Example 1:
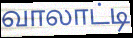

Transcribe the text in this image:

வாலாட்டி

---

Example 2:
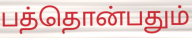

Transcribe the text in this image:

பத்தொன்பதும்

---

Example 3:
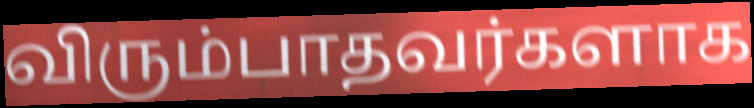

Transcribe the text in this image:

விரும்பாதவர்களாக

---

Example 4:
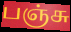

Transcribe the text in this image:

பஞ்சு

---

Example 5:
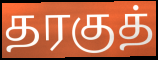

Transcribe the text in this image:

தரகுத்